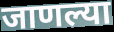
जाणल्या